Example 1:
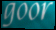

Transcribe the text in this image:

goor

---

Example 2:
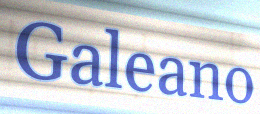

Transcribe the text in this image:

Galeano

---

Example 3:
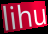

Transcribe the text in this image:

lihu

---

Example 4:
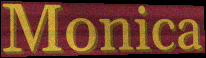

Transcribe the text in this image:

Monica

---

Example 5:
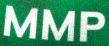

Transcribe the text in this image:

MMP